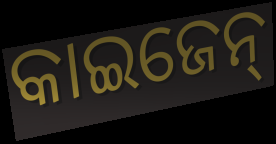
କାଇଜେନ୍